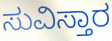
ಸುವಿಸ್ತಾರ